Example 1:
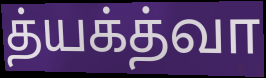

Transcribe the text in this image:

த்யக்த்வா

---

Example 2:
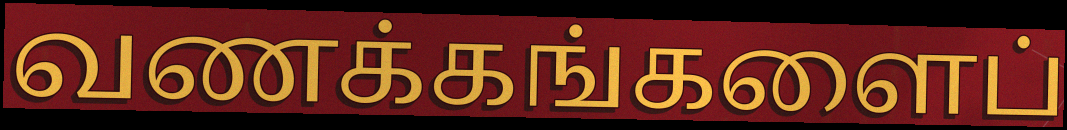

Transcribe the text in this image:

வணக்கங்களைப்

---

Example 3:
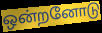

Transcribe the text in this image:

ஒன்றனோடு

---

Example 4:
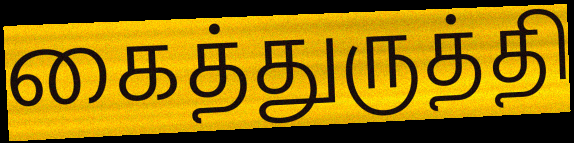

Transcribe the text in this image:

கைத்துருத்தி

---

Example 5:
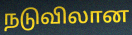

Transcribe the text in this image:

நடுவிலான